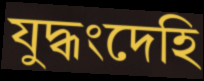
যুদ্ধংদেহি